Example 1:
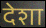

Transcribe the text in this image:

देशा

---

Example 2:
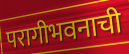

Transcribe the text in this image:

परागीभवनाची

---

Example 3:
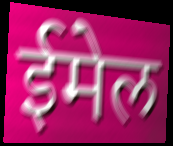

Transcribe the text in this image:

ईमेल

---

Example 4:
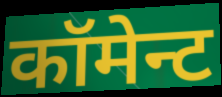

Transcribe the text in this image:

कॉमेन्ट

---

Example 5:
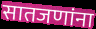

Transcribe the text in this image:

सातजणांना